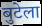
बुटेला